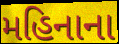
મહિનાના